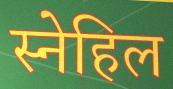
स्नेहिल